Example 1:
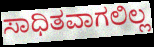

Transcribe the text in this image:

ಸಾಧಿತವಾಗಲಿಲ್ಲ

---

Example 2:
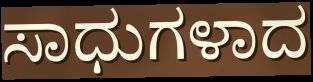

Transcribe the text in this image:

ಸಾಧುಗಳಾದ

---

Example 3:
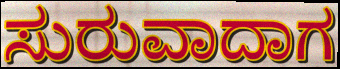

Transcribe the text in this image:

ಸುರುವಾದಾಗ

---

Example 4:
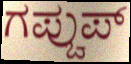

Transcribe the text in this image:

ಗಪ್ಚುಪ್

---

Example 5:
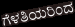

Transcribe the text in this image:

ಗೆಳತಿಯರಿಂದ